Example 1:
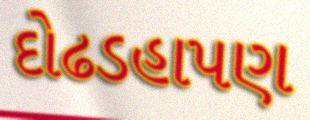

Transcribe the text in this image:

દોઢડહાપણ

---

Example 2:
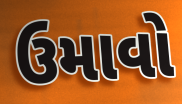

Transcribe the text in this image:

ઉમાવો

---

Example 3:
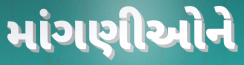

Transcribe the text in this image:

માંગણીઓને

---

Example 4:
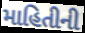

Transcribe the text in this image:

માહિતીની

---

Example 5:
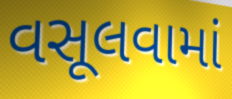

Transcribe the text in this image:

વસૂલવામાં